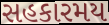
સહકારમય